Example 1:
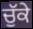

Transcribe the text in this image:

ਚੁੱਕੇ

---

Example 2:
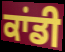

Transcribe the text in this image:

ਕਾਂਡੀ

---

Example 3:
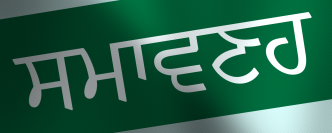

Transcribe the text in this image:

ਸਮਾਵਣਹ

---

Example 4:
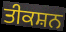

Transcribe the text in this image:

ਤੀਕਸ਼ਨ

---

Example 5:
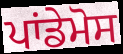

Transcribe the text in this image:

ਪਾਂਡੇਮੋਸ